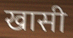
खासी